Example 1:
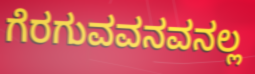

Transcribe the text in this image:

ಗೆರಗುವವನವನಲ್ಲ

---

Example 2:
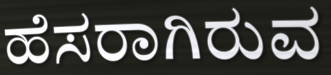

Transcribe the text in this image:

ಹೆಸರಾಗಿರುವ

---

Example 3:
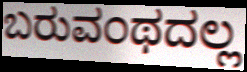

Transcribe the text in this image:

ಬರುವಂಥದಲ್ಲ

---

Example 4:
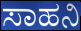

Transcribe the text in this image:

ಸಾಹನಿ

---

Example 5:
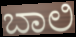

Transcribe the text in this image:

ಬಾಲಿ